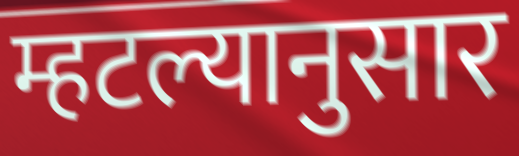
म्हटल्यानुसार